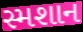
સ્મશાન